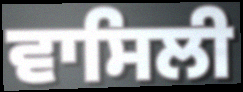
ਵਾਸਿਲੀ